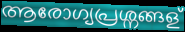
ആരോഗ്യപ്രശ്നങ്ങള്